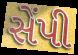
સેંપી